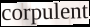
corpulent